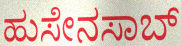
ಹುಸೇನಸಾಬ್